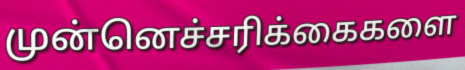
முன்னெச்சரிக்கைகளை